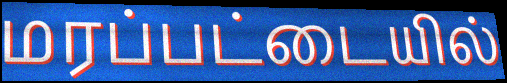
மரப்பட்டையில்